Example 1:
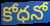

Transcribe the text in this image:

కోధనో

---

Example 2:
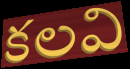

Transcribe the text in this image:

కలవి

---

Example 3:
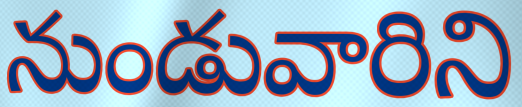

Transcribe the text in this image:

నుండువారిని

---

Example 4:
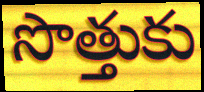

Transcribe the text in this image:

సొత్తుకు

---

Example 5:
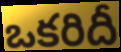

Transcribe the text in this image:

ఒకరిదీ